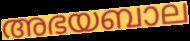
അഭയബാല